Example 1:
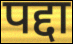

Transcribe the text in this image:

पद्दा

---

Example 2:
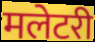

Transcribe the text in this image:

मलेटरी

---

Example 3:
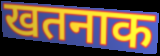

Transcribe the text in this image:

खतनाक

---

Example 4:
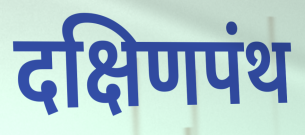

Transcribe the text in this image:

दक्षिणपंथ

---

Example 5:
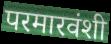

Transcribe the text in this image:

परमारवंशी